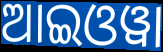
ଆଇଓୱା